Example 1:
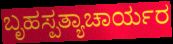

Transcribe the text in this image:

ಬೃಹಸ್ಪತ್ಯಾಚಾರ್ಯರ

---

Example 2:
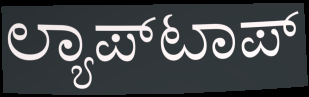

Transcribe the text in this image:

ಲ್ಯಾಪ್‍ಟಾಪ್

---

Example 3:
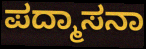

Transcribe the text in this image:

ಪದ್ಮಾಸನಾ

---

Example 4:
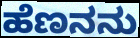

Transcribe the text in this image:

ಹೆಣನನು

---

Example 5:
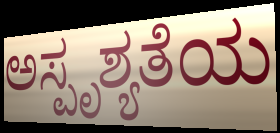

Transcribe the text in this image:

ಅಸ್ಪೃಶ್ಯತೆಯ